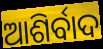
ଆଶିର୍ବାଦ